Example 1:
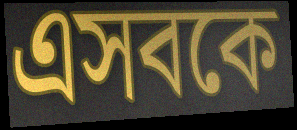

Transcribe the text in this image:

এসবকে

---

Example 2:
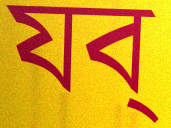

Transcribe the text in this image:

যব্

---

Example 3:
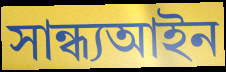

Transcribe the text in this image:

সান্ধ্যআইন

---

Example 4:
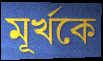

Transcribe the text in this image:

মূর্খকে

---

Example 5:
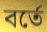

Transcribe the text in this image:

বর্তে